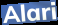
Alari